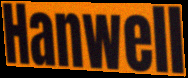
Hanwell